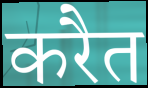
करैत